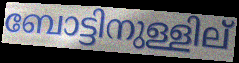
ബോട്ടിനുള്ളില്